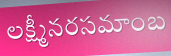
లక్ష్మీనరసమాంబ